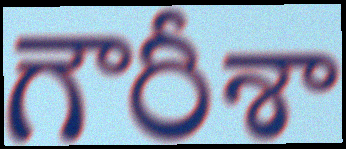
గౌరీశా